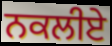
ਨਕਲੀਏ